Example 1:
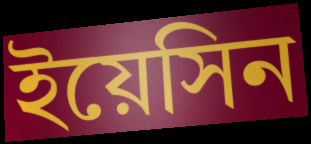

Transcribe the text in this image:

ইয়েসিন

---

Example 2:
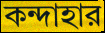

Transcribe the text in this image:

কন্দাহার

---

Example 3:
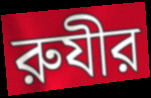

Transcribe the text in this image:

রুযীর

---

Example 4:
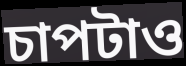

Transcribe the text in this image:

চাপটাও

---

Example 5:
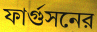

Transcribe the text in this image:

ফার্গুসনের